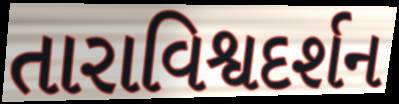
તારાવિશ્વદર્શન